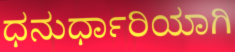
ಧನುರ್ಧಾರಿಯಾಗಿ